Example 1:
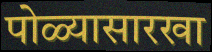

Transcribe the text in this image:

पोळ्यासारखा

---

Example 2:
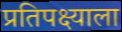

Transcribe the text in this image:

प्रतिपक्ष्याला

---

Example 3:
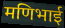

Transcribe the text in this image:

मणिभाई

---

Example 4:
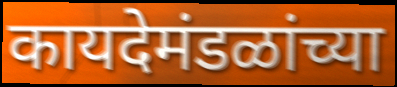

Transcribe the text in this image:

कायदेमंडळांच्या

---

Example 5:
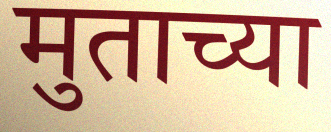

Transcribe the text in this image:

मुताच्या